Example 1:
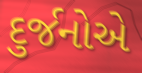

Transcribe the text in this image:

દુર્જનોએ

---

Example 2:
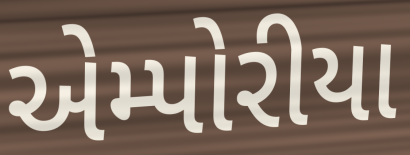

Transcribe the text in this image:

એમ્પોરીયા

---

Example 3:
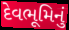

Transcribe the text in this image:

દેવભૂમિનું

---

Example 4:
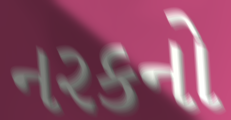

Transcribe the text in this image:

નરકનો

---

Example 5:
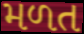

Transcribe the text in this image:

મળત